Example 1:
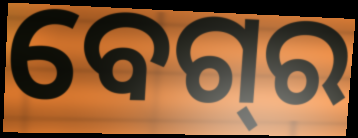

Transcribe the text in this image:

ବେଗ୍‌ର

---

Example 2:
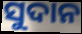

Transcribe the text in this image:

ସୁଦାନ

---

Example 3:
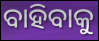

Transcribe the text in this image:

ବାହିବାକୁ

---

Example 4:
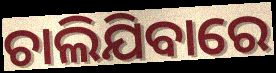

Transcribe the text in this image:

ଚାଲିଯିବାରେ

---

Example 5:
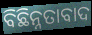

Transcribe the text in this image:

ବିଛିନ୍ନତାବାଦ